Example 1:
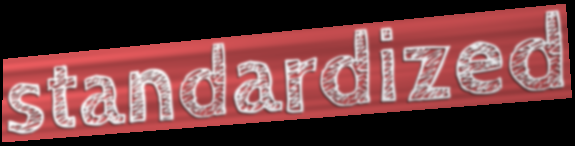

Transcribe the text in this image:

standardized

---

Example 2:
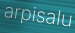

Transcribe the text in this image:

arpisalu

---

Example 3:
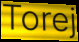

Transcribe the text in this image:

Torej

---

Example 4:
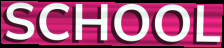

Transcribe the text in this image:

SCHOOL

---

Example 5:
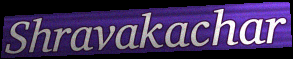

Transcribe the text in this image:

Shravakachar